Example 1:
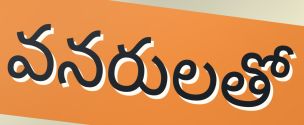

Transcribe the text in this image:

వనరులతో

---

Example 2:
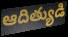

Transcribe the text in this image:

ఆదిత్యుడి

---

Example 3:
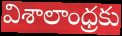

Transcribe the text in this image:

విశాలాంధ్రకు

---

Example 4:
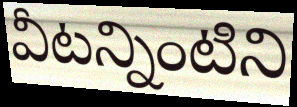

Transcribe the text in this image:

వీటన్నింటిని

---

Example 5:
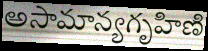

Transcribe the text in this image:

అసామాన్యగృహిణి